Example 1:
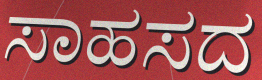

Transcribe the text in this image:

ಸಾಹಸದ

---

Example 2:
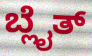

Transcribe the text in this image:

ಬ್ಲೈತ್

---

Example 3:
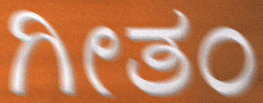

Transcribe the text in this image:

ಗೀತಂ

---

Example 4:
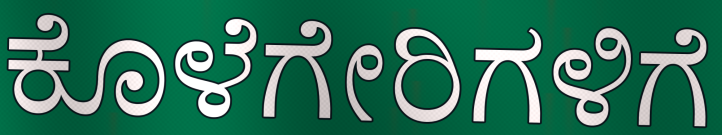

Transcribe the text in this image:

ಕೊಳೆಗೇರಿಗಳಿಗೆ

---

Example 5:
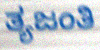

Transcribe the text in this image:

ತ್ಯಜಂತಿ